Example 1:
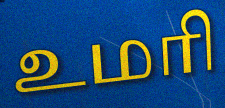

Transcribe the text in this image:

உமரி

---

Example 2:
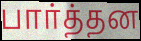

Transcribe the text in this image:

பார்த்தன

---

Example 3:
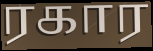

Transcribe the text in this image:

ரகார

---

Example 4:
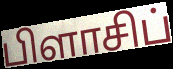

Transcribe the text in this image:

பிளாசிப்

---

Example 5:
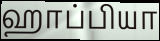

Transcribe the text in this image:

ஹாப்பியா